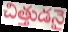
చిత్తుడనై